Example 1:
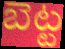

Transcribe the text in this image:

బెట్ట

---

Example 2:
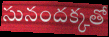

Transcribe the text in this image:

సునందక్కతో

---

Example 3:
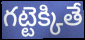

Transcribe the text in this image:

గట్టెక్కితే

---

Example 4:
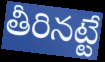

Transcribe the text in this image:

తీరినట్టే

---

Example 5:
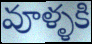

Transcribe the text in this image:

వూళ్ళకి